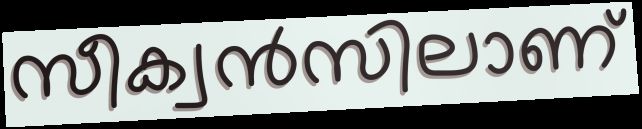
സീക്വൻസിലാണ്